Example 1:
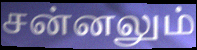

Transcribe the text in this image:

சன்னலும்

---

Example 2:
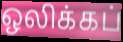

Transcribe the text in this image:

ஒலிக்கப்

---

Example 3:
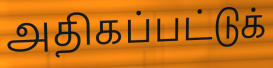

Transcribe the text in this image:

அதிகப்பட்டுக்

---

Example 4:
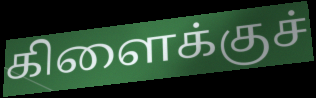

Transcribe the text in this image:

கிளைக்குச்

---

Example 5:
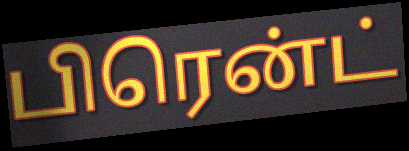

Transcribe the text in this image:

பிரென்ட்